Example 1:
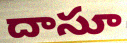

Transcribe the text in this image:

దాసూ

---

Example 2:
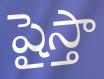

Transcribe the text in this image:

షైస్తా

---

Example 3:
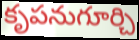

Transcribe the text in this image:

కృపనుగూర్చి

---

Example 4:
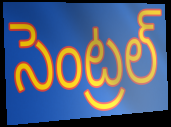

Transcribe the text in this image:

సెంట్రల్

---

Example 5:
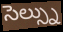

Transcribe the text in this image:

సెల్స్ను